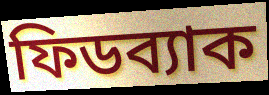
ফিডব্যাক